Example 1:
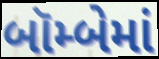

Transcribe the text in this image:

બૉમ્બેમાં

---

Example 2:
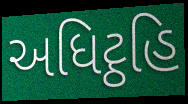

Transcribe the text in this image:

અધિટ્ઠહિ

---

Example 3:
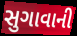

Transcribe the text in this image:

સુગાવાની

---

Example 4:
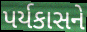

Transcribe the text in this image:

પર્યકાસને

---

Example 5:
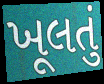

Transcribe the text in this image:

ખૂલતું